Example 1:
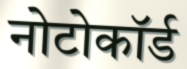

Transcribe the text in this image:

नोटोकॉर्ड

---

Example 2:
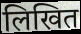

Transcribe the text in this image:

लिखित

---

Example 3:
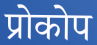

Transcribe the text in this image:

प्रोकोप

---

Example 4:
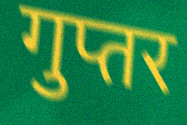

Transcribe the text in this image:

गुप्तर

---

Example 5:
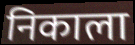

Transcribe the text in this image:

निकाला